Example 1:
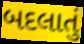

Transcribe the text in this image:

બદલાતું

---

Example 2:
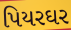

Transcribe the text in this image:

પિયરઘર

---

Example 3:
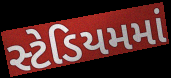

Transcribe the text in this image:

સ્ટેડિયમમાં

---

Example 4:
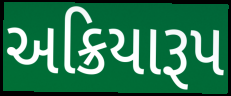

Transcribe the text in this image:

અક્રિયારૂપ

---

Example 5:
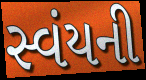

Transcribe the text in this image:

સ્વંયની